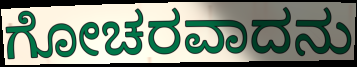
ಗೋಚರವಾದನು